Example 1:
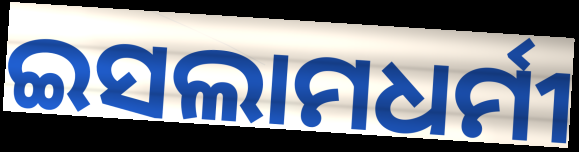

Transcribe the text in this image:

ଇସଲାମଧର୍ମୀ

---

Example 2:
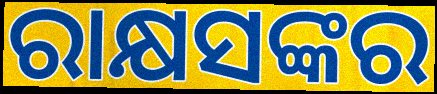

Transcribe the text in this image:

ରାକ୍ଷସଙ୍କର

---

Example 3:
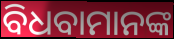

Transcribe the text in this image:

ବିଧବାମାନଙ୍କ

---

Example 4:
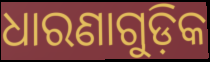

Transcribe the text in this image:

ଧାରଣାଗୁଡ଼ିକ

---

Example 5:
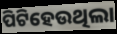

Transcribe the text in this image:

ପିଟିହେଉଥିଲା